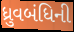
ધ્રુવબંધિની